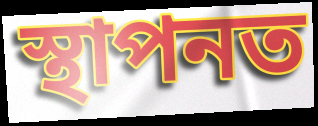
স্থাপনত